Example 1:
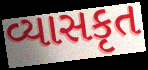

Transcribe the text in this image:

વ્યાસકૃત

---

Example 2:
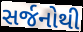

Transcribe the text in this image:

સર્જનોથી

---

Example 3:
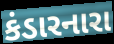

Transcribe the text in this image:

કંડારનારા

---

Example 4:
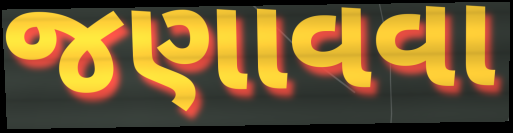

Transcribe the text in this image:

જણાવવા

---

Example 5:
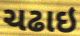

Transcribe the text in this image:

ચઢાઇ